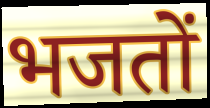
भजतों